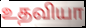
உதவியா